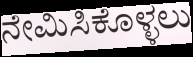
ನೇಮಿಸಿಕೊಳ್ಳಲು